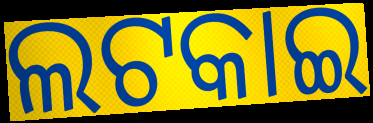
ଲଟକାଇ